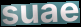
suae